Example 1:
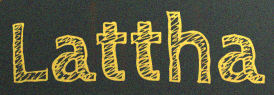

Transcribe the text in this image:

Lattha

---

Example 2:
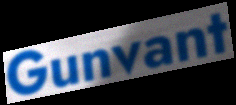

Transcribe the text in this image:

Gunvant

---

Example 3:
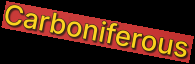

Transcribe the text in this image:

Carboniferous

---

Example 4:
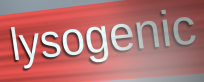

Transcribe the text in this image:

lysogenic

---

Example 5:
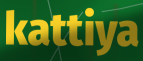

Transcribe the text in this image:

kattiya